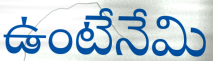
ఉంటేనేమి